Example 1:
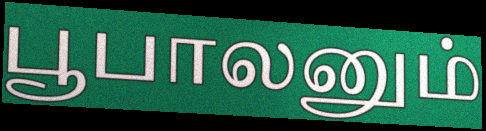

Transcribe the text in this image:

பூபாலனும்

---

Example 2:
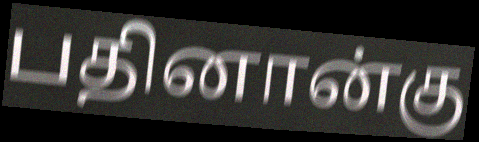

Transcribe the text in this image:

பதினான்கு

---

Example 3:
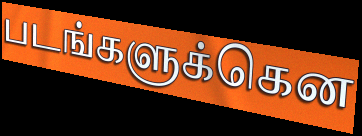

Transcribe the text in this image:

படங்களுக்கென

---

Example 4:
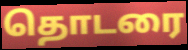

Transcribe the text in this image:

தொடரை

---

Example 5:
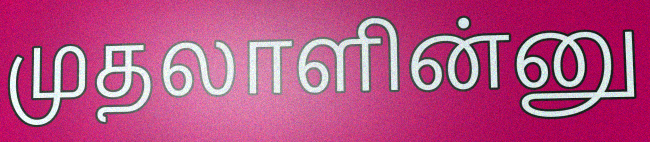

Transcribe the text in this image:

முதலாளின்னு